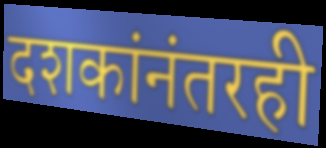
दशकांनंतरही